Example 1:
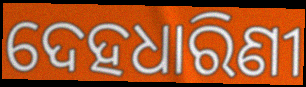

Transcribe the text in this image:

ଦେହଧାରିଣୀ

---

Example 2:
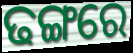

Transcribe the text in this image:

ଢଙ୍ଗରେ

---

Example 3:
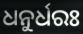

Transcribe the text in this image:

ଧନୁର୍ଧରଃ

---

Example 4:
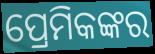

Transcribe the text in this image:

ପ୍ରେମିକଙ୍କର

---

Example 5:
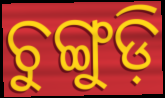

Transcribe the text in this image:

ଚୁଙ୍ଗୁଡ଼ି